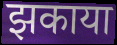
झकाया